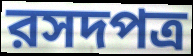
রসদপত্র